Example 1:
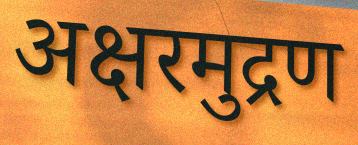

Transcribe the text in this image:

अक्षरमुद्रण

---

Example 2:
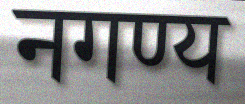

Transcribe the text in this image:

नगण्य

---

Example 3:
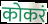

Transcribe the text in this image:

कोकरं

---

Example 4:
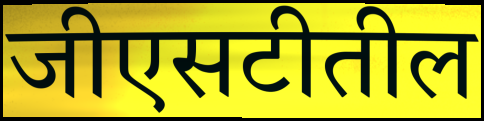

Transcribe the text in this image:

जीएसटीतील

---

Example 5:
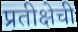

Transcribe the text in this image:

प्रतीक्षेची